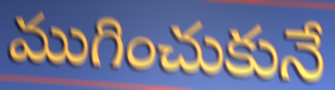
ముగించుకునే